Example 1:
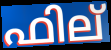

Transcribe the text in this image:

ഫില്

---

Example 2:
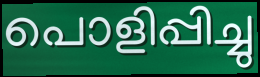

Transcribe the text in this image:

പൊളിപ്പിച്ചു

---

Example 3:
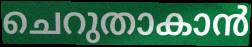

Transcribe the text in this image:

ചെറുതാകാൻ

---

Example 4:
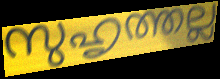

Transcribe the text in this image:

സുഹൃത്തല്ല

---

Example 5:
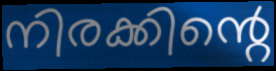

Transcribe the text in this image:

നിരക്കിന്റെ